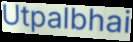
Utpalbhai